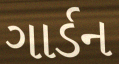
ગાર્ડન